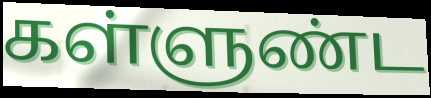
கள்ளுண்ட